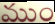
ముం